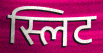
स्लिट